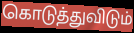
கொடுத்துவிடும்